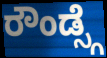
ರೌಂಡ್ಸ್ಗೆ